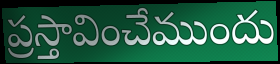
ప్రస్తావించేముందు